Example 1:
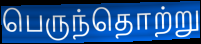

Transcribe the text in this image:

பெருந்தொற்று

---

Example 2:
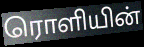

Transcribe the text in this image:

ரொளியின்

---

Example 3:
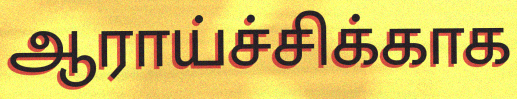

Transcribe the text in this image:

ஆராய்ச்சிக்காக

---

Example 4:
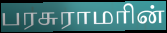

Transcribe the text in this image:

பரசுராமரின்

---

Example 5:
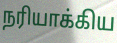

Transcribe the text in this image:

நரியாக்கிய